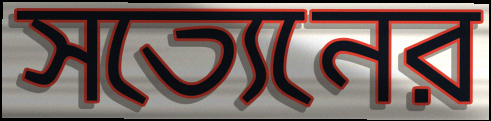
সত্যেনের